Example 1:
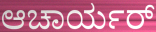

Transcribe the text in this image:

ಆಚಾರ್ಯರ್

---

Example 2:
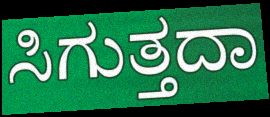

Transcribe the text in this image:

ಸಿಗುತ್ತದಾ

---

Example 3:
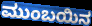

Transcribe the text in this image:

ಮುಂಬಯಿನ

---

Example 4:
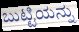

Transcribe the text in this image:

ಬುಟ್ಟಿಯನ್ನು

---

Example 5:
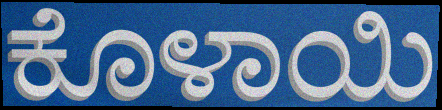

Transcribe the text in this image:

ಕೊಳಾಯಿ